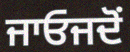
ਜਾਓਜਦੋਂ